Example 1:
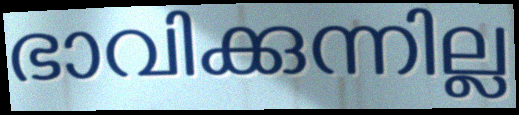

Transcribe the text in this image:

ഭാവിക്കുന്നില്ല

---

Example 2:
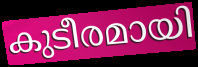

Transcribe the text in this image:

കുടീരമായി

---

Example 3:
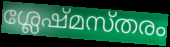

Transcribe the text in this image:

ശ്ലേഷ്മസ്തരം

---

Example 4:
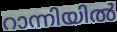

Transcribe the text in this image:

റാന്നിയിൽ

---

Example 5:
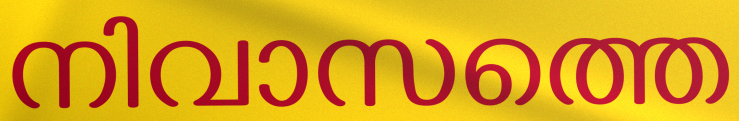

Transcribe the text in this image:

നിവാസത്തെ